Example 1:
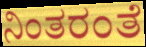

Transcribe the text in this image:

ನಿಂತರಂತೆ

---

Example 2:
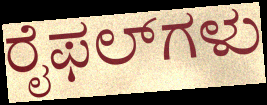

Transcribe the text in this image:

ರೈಫಲ್‌ಗಳು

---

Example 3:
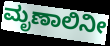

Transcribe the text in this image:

ಮೃಣಾಲಿನೀ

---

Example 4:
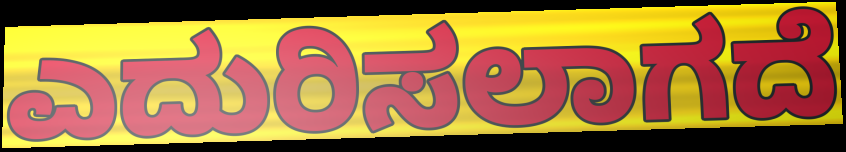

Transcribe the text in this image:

ಎದುರಿಸಲಾಗದೆ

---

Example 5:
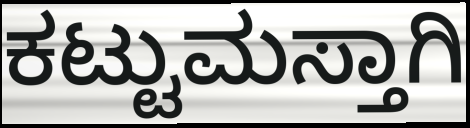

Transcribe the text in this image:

ಕಟ್ಟುಮಸ್ತಾಗಿ